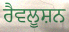
ਰੈਵਲੂਸ਼ਨ